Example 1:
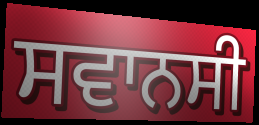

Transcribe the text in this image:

ਸਵਾਨਸੀ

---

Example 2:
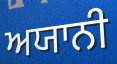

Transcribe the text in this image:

ਅਯਾਨੀ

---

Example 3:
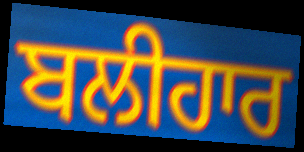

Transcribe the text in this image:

ਬਲੀਹਾਰ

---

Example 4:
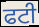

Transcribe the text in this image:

ਫਟੀ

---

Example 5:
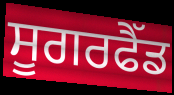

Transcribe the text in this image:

ਸੂਗਰਫੈੱਡ